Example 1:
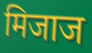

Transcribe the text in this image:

मिजाज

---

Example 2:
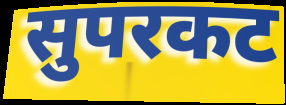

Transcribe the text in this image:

सुपरकट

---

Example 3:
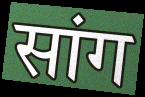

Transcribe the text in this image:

सांग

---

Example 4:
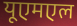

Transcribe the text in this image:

यूएमएल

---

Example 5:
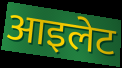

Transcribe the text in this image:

आइलेट